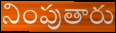
నింపుతారు